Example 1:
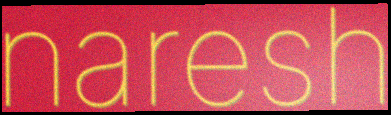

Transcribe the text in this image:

naresh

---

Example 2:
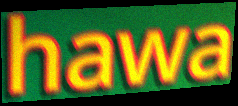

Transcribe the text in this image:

hawa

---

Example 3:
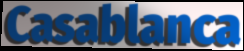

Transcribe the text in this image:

Casablanca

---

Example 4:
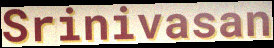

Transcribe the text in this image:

Srinivasan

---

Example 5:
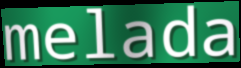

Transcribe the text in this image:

melada